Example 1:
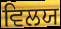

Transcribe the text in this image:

ਵਿਲਯ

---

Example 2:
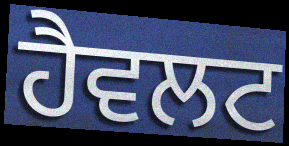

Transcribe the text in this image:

ਹੈਵਲਟ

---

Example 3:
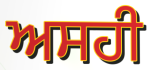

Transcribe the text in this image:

ਅਸਹੀ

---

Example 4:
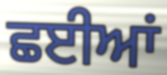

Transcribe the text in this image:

ਛਈਆਂ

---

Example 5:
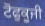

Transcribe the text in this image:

ਟੋਫੁਕੂਜੀ